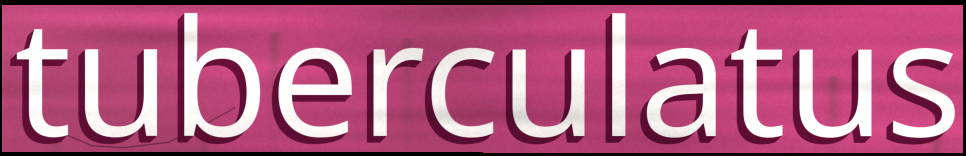
tuberculatus